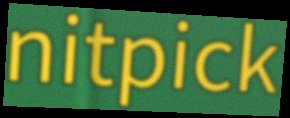
nitpick